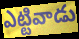
ఎట్టివాడు